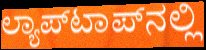
ಲ್ಯಾಪ್‌ಟಾಪ್‌ನಲ್ಲಿ